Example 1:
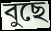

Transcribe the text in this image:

বুছে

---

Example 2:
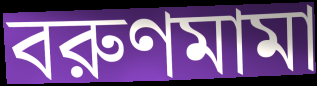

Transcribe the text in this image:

বরুণমামা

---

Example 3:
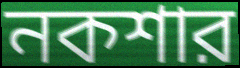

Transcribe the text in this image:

নকশার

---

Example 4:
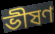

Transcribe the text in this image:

ভীষণ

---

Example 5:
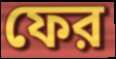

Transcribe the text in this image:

ফের